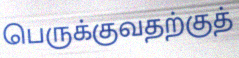
பெருக்குவதற்குத்